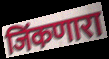
जिंकणारा